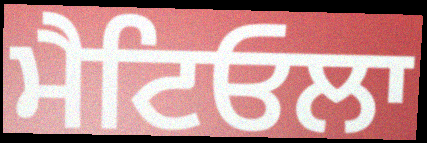
ਮੈਟਿਓਲਾ